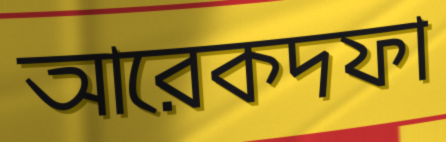
আরেকদফা